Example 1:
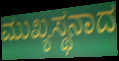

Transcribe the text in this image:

ಮುಖ್ಯಸ್ಥನಾದ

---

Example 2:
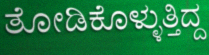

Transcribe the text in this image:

ತೋಡಿಕೊಳ್ಳುತ್ತಿದ್ದ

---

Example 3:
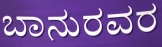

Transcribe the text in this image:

ಬಾನುರವರ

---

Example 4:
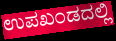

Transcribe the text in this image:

ಉಪಖಂಡದಲ್ಲಿ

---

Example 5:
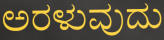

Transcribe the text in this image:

ಅರಳುವುದು